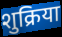
शुक्रिया